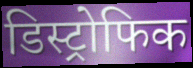
डिस्ट्रोफिक